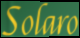
Solaro